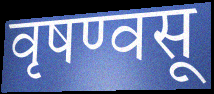
वृषण्वसू